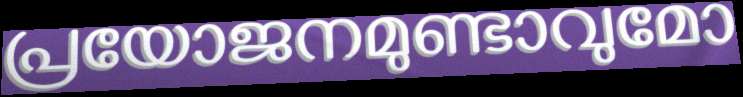
പ്രയോജനമുണ്ടാവുമോ